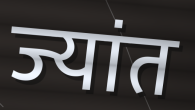
ज्यांत